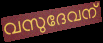
വസുദേവന്